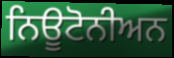
ਨਿਊਟੋਨੀਅਨ